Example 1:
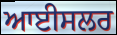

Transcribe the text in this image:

ਆਈਸਲਰ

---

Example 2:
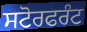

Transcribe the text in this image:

ਸਟੋਰਫਰੰਟ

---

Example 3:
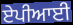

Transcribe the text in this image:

ਏਪੀਆਈ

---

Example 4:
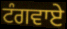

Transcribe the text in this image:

ਟੰਗਵਾਏ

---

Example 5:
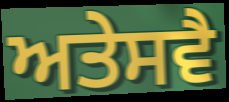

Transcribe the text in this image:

ਅਤੇਸਵੈ